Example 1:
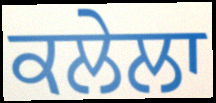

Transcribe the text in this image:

ਕਲੇਲਾ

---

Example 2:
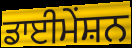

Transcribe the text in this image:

ਡਾਈਮੇਂਸ਼ਨ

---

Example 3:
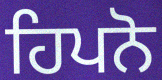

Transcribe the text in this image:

ਹਿਪਨੋ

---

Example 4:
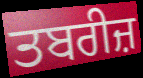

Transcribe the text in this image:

ਤਬਰੀਜ਼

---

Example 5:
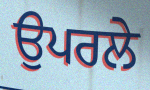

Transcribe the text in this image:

ਉਪਰਲੇ